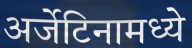
अर्जेटिनामध्ये